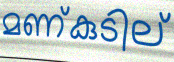
മണ്കുടില്